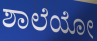
ಶಾಲೆಯೋ